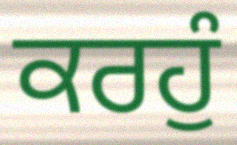
ਕਰਹੁੰ